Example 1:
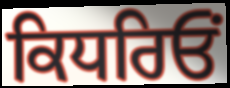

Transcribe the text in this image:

ਕਿਧਰਿਓਂ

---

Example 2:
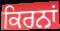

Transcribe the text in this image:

ਕਿਰਨਾਂ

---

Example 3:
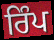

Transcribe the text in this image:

ਰਿੰਪ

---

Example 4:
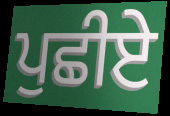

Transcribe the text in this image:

ਪੁਛੀਏ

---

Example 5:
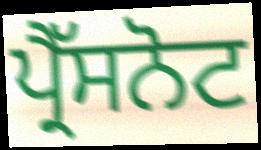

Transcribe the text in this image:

ਪ੍ਰੈੱਸਨੋਟ